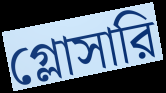
গ্লোসারি